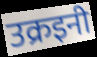
उक्रइनी